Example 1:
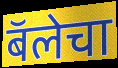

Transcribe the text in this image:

बॅलेचा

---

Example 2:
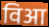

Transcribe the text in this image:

विआ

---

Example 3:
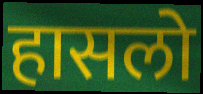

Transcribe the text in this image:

हासलो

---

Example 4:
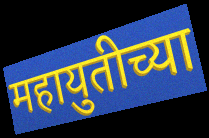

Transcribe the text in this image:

महायुतीच्या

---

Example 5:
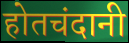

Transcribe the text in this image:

होतचंदानी